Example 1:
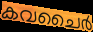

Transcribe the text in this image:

കവചൈർ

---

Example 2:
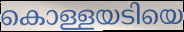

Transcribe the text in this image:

കൊള്ളയടിയെ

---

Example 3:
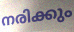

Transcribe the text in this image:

നരിക്കും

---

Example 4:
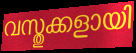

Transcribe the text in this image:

വസ്തുക്കളായി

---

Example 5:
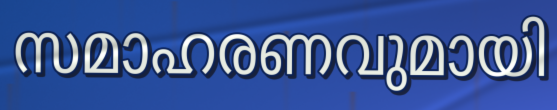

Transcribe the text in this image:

സമാഹരണവുമായി